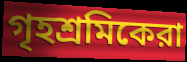
গৃহশ্রমিকেরা